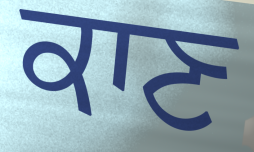
ਕਾਣ